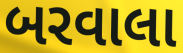
બરવાલા